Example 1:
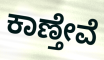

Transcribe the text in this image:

ಕಾಣ್ತೇವೆ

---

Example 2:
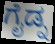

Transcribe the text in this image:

ಗೈಡ್ನ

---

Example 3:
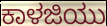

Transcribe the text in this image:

ಕಾಳಜಿಯು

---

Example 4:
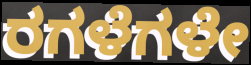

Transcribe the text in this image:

ರಗಳೆಗಳೇ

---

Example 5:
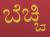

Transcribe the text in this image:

ಬೆಚ್ಚಿ